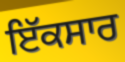
ਇੱਕਸਾਰ